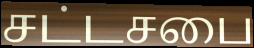
சட்டசபை